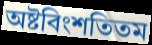
অষ্টবিংশতিতম